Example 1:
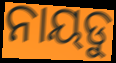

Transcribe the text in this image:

ନାୟଡୁ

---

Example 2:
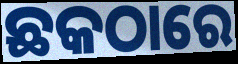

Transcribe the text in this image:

ଛକଠାରେ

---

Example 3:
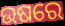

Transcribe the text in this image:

ଉଷରେ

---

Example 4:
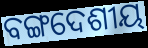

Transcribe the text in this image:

ବଙ୍ଗଦେଶୀୟ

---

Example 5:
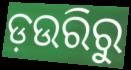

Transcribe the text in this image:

ଡ଼ଉରିରୁ